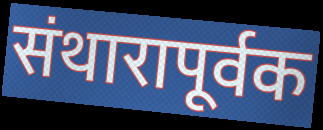
संथारापूर्वक